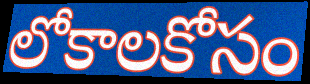
లోకాలకోసం